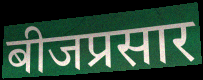
बीजप्रसार